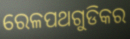
ରେଳପଥଗୁଡିକର